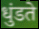
धुंडते